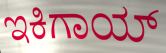
ಇಕಿಗಾಯ್